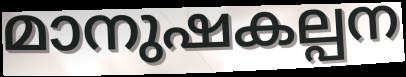
മാനുഷകല്പന